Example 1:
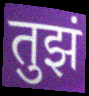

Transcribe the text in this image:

तुझं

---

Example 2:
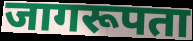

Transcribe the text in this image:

जागरूपता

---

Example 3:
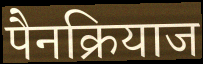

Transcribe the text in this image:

पैनक्रियाज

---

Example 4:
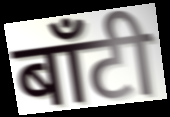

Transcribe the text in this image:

बाँटी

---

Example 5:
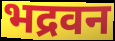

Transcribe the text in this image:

भद्रवन